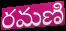
రమణి